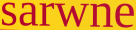
sarwne